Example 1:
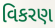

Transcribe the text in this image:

વિકરણ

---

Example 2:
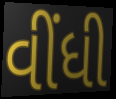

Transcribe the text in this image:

વીંધી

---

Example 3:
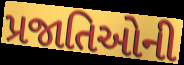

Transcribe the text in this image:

પ્રજાતિઓની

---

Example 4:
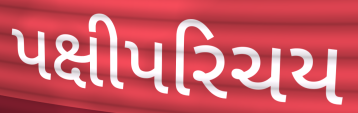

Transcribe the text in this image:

પક્ષીપરિચય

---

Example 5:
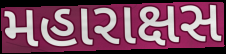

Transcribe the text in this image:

મહારાક્ષસ